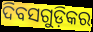
ଦିବସଗୁଡ଼ିକର